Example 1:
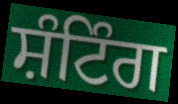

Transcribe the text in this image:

ਸ਼ੰਟਿੰਗ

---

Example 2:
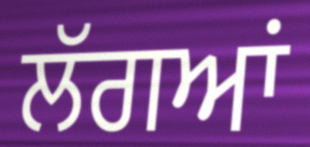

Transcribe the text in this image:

ਲੱਗਆਂ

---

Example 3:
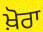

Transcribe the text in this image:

ਖ਼ੋਰਾ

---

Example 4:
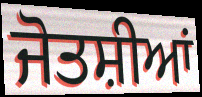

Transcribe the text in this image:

ਜੋਤਸ਼ੀਆਂ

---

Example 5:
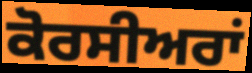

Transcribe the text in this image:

ਕੋਰਸੀਅਰਾਂ